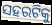
ସହରଟିକୁ